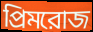
প্রিমরোজ